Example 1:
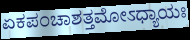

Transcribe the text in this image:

ಏಕಪಂಚಾಶತ್ತಮೋಽಧ್ಯಾಯಃ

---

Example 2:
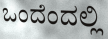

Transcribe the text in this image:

ಒಂದೆಂದಲ್ಲಿ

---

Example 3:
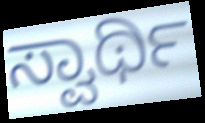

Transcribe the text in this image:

ಸ್ವಾರ್ಥಿ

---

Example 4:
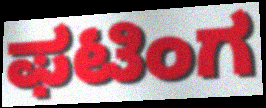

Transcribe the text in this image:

ಫಟಿಂಗ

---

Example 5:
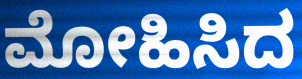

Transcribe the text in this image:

ಮೋಹಿಸಿದ